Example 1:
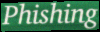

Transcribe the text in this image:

Phishing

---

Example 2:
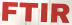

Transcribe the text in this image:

FTIR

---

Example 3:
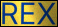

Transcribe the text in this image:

REX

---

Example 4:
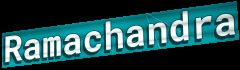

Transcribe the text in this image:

Ramachandra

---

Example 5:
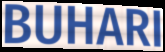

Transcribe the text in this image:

BUHARI